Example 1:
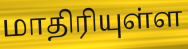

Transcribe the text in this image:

மாதிரியுள்ள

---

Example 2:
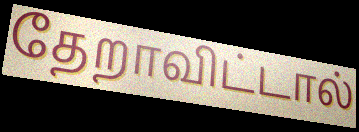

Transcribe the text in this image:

தேறாவிட்டால்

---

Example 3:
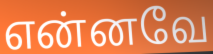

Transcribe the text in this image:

என்னவே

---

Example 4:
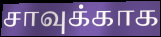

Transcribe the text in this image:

சாவுக்காக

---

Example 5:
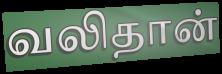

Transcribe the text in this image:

வலிதான்